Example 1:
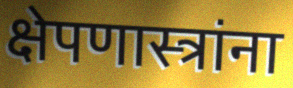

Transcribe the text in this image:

क्षेपणास्त्रांना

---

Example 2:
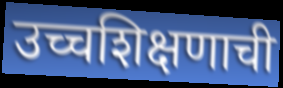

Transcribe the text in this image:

उच्चशिक्षणाची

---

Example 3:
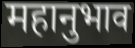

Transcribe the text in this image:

महानुभाव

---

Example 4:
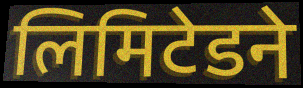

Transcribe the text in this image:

लिमिटेडने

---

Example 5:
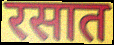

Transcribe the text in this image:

रसात